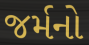
જર્મનો